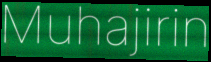
Muhajirin